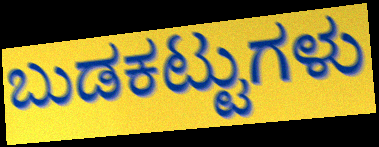
ಬುಡಕಟ್ಟುಗಳು